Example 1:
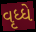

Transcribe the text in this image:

વૃધ્ધે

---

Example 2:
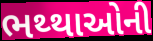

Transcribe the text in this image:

ભથ્થાઓની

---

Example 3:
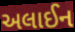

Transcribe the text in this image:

અલાઈન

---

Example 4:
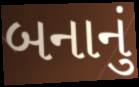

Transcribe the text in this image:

બનાનું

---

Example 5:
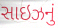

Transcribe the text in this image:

સાઇઝનું